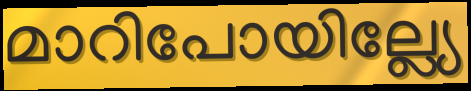
മാറിപോയില്ല്യേ